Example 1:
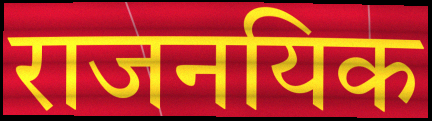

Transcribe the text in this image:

राजनयिक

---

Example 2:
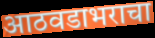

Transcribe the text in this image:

आठवडाभराचा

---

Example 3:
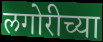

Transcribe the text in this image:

लगोरीच्या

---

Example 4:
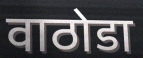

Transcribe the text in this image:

वाठोडा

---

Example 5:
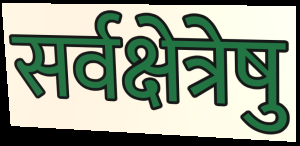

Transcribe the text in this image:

सर्वक्षेत्रेषु